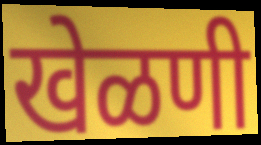
खेळणी